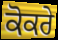
ਕੋਕਰੇ